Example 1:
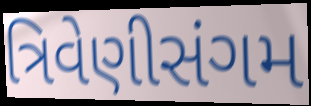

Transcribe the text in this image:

ત્રિવેણીસંગમ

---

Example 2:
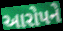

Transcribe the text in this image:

આરોપને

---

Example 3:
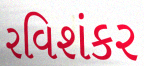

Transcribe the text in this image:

રવિશંકર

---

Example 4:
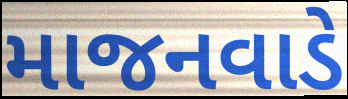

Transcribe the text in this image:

માજનવાડે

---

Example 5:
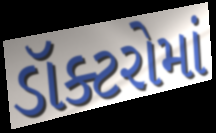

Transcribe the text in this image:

ડૉક્ટરોમાં